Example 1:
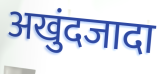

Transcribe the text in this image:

अखुंदजादा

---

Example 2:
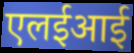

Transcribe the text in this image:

एलईआई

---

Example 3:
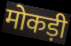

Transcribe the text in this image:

मोकड़ी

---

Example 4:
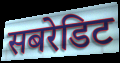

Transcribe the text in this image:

सबरेडिट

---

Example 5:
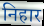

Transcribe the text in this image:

निहार